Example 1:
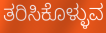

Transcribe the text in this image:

ತರಿಸಿಕೊಳ್ಳುವ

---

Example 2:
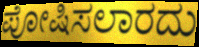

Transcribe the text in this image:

ಪೋಷಿಸಲಾರದು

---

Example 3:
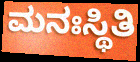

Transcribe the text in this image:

ಮನಃಸ್ಥಿತಿ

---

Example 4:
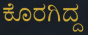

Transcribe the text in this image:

ಕೊರಗಿದ್ದ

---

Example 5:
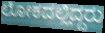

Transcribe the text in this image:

ಲೋಕದಲ್ಲಿದ್ದರು